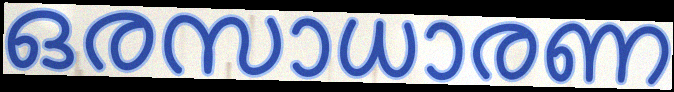
ഒരസാധാരണ